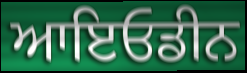
ਆਇਓਡੀਨ